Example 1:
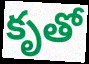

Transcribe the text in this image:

కృతో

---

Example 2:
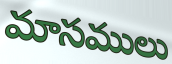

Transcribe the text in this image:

మాసములు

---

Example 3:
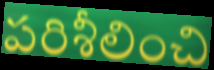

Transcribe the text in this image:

పరిశీలించి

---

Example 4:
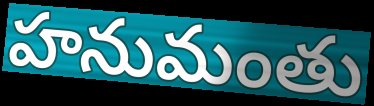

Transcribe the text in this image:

హనుమంతు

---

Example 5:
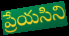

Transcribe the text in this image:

ప్రేయసిని